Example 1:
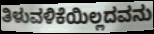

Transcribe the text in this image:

ತಿಳುವಳಿಕೆಯಿಲ್ಲದವನು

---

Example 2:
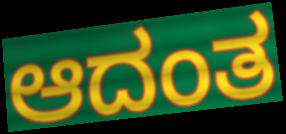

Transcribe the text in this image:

ಆದಂತ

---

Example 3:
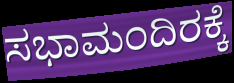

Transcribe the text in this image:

ಸಭಾಮಂದಿರಕ್ಕೆ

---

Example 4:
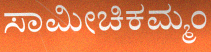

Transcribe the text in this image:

ಸಾಮೀಚಿಕಮ್ಮಂ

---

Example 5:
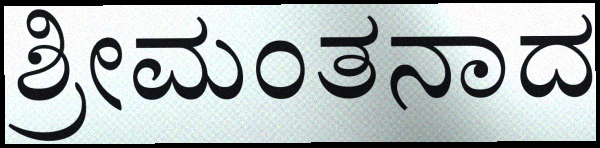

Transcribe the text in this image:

ಶ್ರೀಮಂತನಾದ